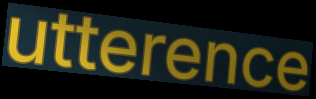
utterence